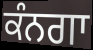
ਕੰਨਗਾ